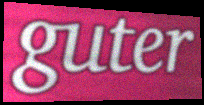
guter